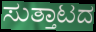
ಸುತ್ತಾಟದ